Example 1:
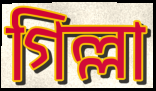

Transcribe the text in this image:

গিল্লা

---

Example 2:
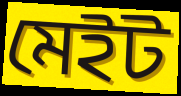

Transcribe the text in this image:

মেইট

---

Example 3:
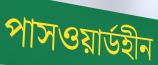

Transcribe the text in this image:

পাসওয়ার্ডহীন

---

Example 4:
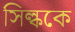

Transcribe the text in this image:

সিল্ককে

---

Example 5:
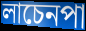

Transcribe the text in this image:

লাচেনপা